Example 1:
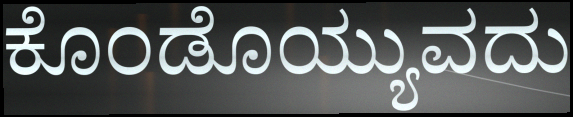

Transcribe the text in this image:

ಕೊಂಡೊಯ್ಯುವದು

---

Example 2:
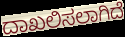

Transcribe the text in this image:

ದಾಖಲಿಸಲಾಗಿದೆ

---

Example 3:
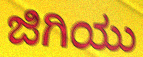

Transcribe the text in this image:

ಜಿಗಿಯು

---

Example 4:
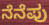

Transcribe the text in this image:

ನೆನೆಪು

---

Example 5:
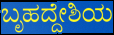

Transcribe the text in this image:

ಬೃಹದ್ದೇಶಿಯ